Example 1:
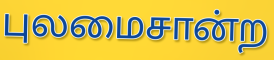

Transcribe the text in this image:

புலமைசான்ற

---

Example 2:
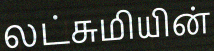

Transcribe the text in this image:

லட்சுமியின்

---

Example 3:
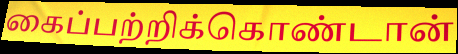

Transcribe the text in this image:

கைப்பற்றிக்கொண்டான்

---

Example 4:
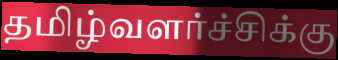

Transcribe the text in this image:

தமிழ்வளர்ச்சிக்கு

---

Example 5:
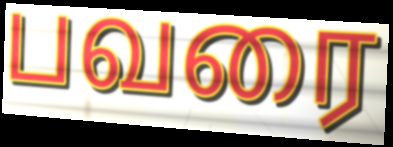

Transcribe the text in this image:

பவரை